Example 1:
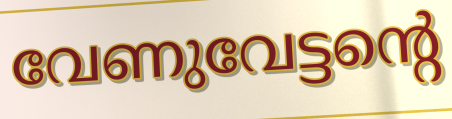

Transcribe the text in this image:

വേണുവേട്ടന്റെ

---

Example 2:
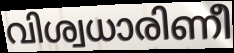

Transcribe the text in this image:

വിശ്വധാരിണീ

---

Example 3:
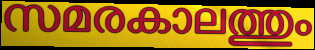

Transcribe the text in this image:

സമരകാലത്തും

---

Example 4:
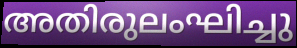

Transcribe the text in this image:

അതിരുലംഘിച്ചു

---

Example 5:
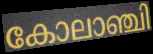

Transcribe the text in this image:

കോലാഞ്ചി